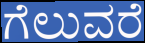
ಗೆಲುವರೆ